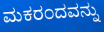
ಮಕರಂದವನ್ನು